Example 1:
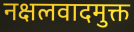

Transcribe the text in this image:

नक्षलवादमुक्त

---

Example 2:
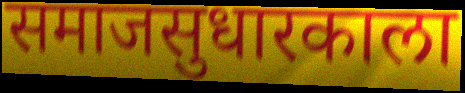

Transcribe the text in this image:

समाजसुधारकाला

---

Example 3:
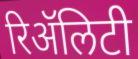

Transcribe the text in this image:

रिॲलिटी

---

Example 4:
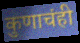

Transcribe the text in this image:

कुणाचंही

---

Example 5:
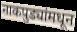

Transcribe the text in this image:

नाकपुड्यांमधून